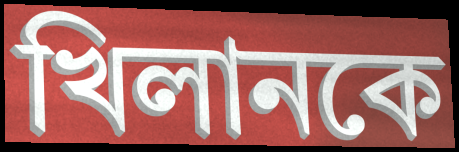
খিলানকে